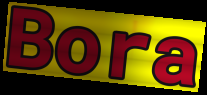
Bora